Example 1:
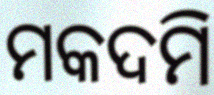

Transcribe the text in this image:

ମକଦମି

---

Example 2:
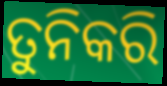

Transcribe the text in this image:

ତୁନିକରି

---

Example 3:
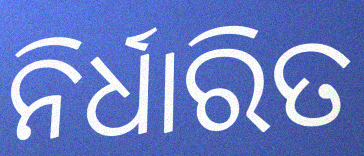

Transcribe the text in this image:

ନିର୍ଧାରିତ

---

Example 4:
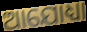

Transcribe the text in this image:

ଆଯୋଧ୍ୟା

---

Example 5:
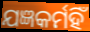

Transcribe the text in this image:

ଯଜ୍ଞକର୍ମହିଁ